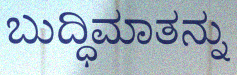
ಬುದ್ಧಿಮಾತನ್ನು